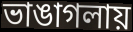
ভাঙাগলায়